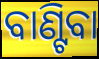
ବାଣ୍ଟିବା